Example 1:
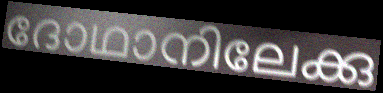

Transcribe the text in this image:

ദോഥാനിലേക്കു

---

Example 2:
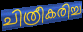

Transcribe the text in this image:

ചിത്രീകരിച്ച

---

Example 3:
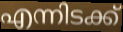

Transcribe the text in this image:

എന്നിടക്ക്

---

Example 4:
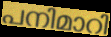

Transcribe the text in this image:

പനിമാറി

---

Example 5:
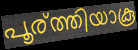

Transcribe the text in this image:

പൂര്ത്തിയാകൂ